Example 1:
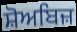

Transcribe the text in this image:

ਸ਼ੋਅਬਿਜ਼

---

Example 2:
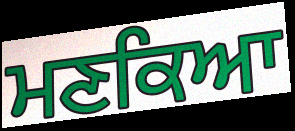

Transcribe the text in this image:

ਮਣਕਿਆ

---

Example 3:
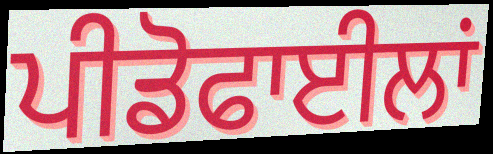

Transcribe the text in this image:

ਪੀਡੋਫਾਈਲਾਂ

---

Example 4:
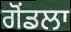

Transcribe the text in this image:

ਗੋਂਡਲਾ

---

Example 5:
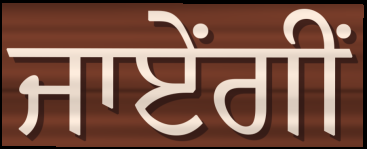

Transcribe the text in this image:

ਜਾਏਂਗੀਂ